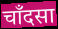
चाँदसा